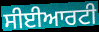
ਸੀਈਆਰਟੀ